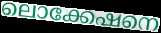
ലൊക്കേഷനെ